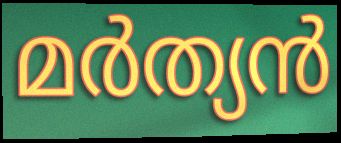
മർത്യൻ